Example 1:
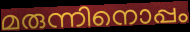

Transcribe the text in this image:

മരുന്നിനൊപ്പം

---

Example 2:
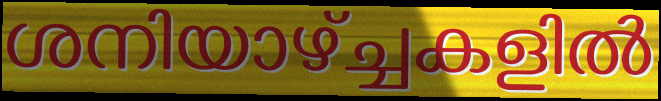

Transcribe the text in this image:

ശനിയാഴ്ച്ചകളിൽ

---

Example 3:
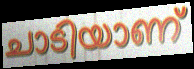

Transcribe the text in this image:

ചാടിയാണ്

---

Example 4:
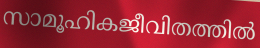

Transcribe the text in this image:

സാമൂഹികജീവിതത്തിൽ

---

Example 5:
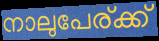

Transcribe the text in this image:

നാലുപേര്ക്ക്